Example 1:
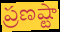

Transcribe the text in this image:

ప్రణష్టా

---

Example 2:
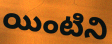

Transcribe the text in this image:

యింటిని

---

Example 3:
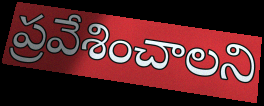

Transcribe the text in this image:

ప్రవేశించాలని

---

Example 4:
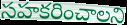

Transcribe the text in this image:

సహకరించాలని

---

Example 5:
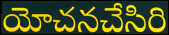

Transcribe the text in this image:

యోచనచేసిరి